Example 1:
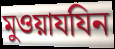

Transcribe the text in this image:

মুওয়াযযিন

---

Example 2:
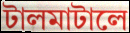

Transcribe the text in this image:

টালমাটালে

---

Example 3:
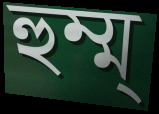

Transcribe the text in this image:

হুম্ম্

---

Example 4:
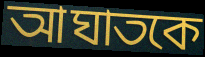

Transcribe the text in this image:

আঘাতকে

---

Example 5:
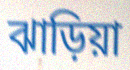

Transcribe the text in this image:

ঝাড়িয়া